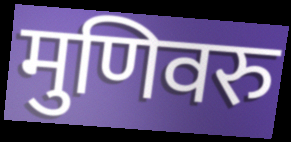
मुणिवरु